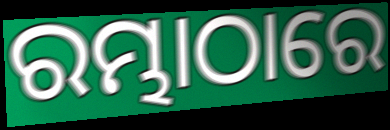
ରମ୍ଭାଠାରେ